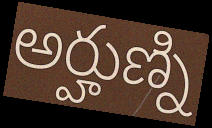
అర్హుణ్ని